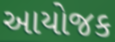
આયોજક